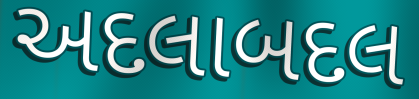
અદલાબદલ